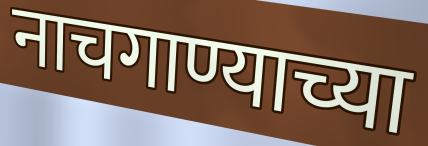
नाचगाण्याच्या